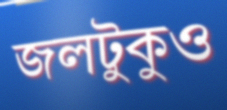
জলটুকুও